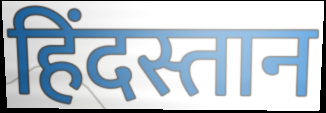
हिंदस्तान